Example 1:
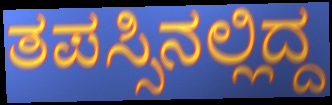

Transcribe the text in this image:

ತಪಸ್ಸಿನಲ್ಲಿದ್ದ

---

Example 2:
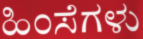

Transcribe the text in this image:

ಹಿಂಸೆಗಳು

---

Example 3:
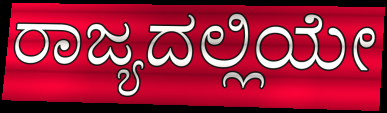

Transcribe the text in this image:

ರಾಜ್ಯದಲ್ಲಿಯೇ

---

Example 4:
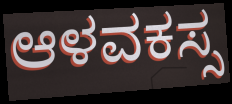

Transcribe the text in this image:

ಆಳವಕಸ್ಸ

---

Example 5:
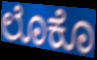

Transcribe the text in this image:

ಲೊಕೊ